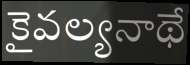
కైవల్యనాథే